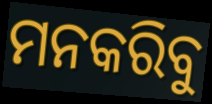
ମନକରିବୁ